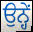
ਉਨ੍ਹੇਂ